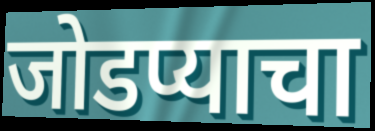
जोडप्याचा